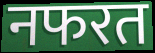
नफरत